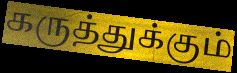
கருத்துக்கும்